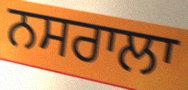
ਨਸਰਾਲਾ